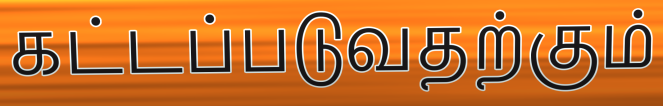
கட்டப்படுவதற்கும்